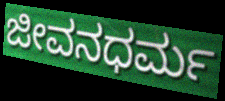
ಜೀವನಧರ್ಮ